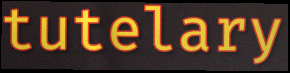
tutelary